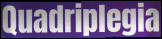
Quadriplegia